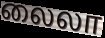
லைலா